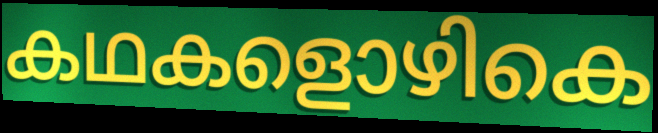
കഥകളൊഴികെ